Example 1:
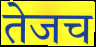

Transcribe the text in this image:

तेजच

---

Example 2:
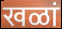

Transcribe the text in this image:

खळां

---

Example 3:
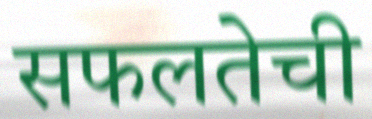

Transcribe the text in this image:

सफलतेची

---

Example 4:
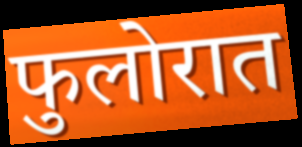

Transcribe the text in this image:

फुलोरात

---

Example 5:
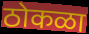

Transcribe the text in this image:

ठोकळा